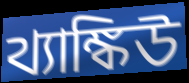
থ্যাঙ্কিউ